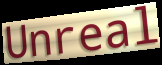
Unreal